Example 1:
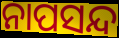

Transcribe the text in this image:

ନାପସନ୍ଦ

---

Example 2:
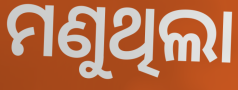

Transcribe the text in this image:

ମଣୁଥିଲା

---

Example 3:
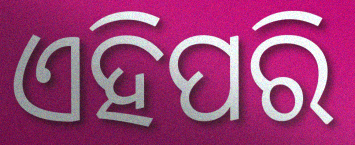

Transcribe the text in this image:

ଏହିପରି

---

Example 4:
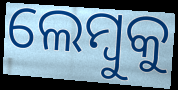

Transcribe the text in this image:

ଲେମ୍ବୁକୁ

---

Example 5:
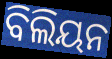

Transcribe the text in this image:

ବିଲିୟନ